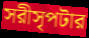
সরীসৃপটার